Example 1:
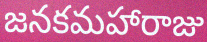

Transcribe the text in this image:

జనకమహారాజు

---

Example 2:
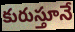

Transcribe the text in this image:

కురుస్తూనే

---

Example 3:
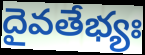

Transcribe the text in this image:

దైవతేభ్యః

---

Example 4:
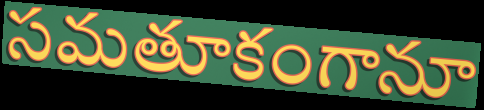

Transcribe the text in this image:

సమతూకంగానూ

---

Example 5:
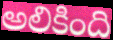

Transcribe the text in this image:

అలికింది